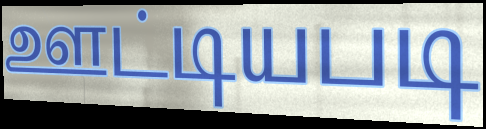
ஊட்டியபடி